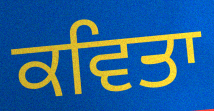
ਕਵਿਤਾ